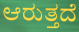
ಆರುತ್ತದೆ